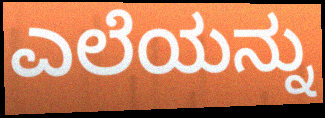
ಎಲೆಯನ್ನು